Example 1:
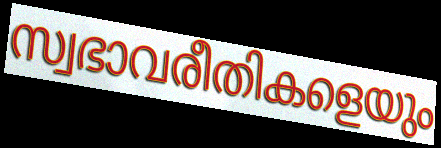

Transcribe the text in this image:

സ്വഭാവരീതികളെയും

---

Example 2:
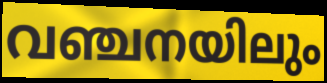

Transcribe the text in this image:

വഞ്ചനയിലും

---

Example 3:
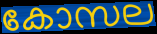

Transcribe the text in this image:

കോസല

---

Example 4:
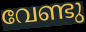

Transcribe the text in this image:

വേണ്ടു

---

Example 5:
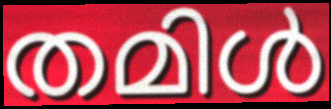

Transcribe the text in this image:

തമിൾ